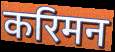
करिमन